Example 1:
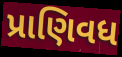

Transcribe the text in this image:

પ્રાણિવધ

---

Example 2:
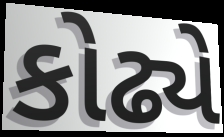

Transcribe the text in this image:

કોઢ્યે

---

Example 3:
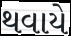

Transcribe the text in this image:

થવાયે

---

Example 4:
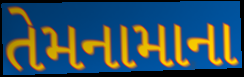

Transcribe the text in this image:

તેમનામાના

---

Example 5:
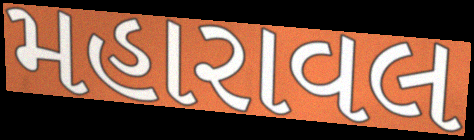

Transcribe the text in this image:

મહારાવલ